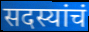
सदस्यांचं